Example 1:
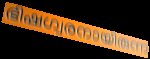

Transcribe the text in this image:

ഭിഷഗ്വരനായിരുന്ന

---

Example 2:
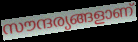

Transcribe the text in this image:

സൗന്ദര്യങ്ങളാണ്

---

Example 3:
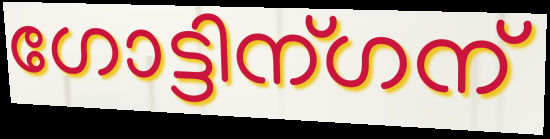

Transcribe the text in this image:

ഗോട്ടിന്ഗന്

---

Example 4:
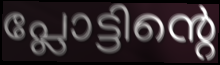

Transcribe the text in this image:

പ്ലോട്ടിന്റെ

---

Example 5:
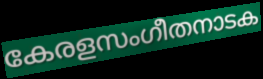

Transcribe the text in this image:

കേരളസംഗീതനാടക